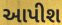
આપીશ